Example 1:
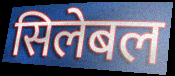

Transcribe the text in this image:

सिलेबल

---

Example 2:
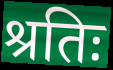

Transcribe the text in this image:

श्रतिः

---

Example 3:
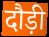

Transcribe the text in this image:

दौड़ी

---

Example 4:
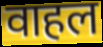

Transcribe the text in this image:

वाहल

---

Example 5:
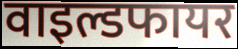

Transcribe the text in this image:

वाइल्डफायर